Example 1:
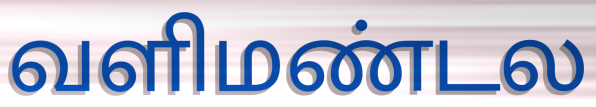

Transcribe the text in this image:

வளிமண்டல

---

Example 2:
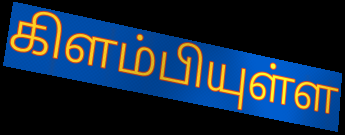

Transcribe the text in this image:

கிளம்பியுள்ள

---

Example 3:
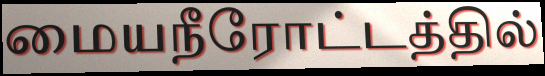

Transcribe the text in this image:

மையநீரோட்டத்தில்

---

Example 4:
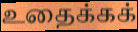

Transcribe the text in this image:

உதைக்கக்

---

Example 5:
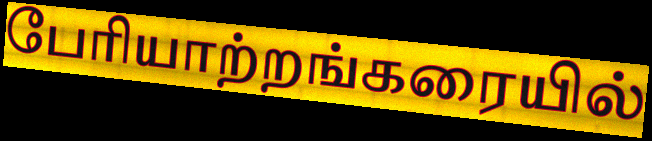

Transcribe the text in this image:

பேரியாற்றங்கரையில்